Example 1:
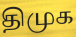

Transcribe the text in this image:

திமுக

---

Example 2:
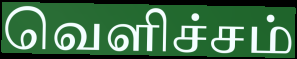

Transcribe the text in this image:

வெளிச்சம்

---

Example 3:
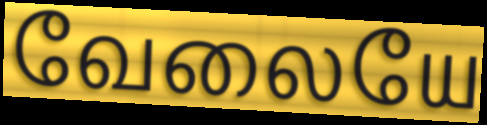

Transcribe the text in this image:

வேலையே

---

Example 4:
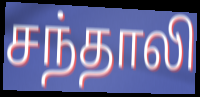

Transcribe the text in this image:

சந்தாலி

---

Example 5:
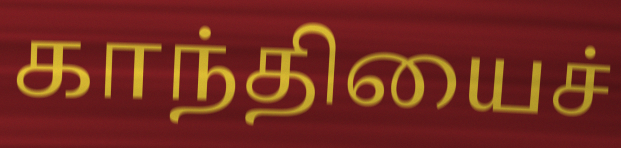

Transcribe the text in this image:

காந்தியைச்